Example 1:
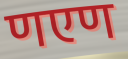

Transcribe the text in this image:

णएण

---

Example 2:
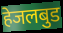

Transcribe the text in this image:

हेजलबुड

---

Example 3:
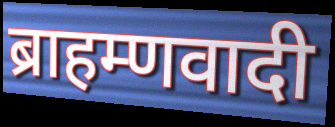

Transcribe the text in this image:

ब्राहम्णवादी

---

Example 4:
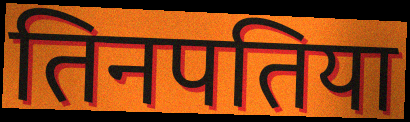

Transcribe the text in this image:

तिनपतिया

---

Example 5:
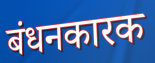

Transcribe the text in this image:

बंधनकारक